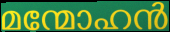
മന്മോഹൻ